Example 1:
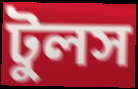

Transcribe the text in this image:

টুলস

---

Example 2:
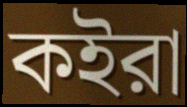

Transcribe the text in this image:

কইরা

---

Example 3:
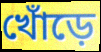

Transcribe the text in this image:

খোঁড়ে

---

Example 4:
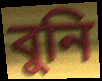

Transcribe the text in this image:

বুনি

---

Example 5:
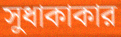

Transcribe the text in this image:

সুধাকাকার